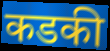
कडकी